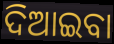
ଦିଆଇବା